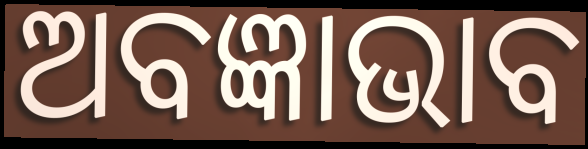
ଅବଜ୍ଞାଭାବ